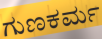
ಗುಣಕರ್ಮ